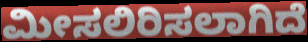
ಮೀಸಲಿರಿಸಲಾಗಿದೆ